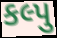
કલ્પુ